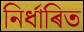
নিৰ্ধাৰিত